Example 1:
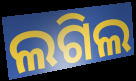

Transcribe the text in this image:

ଲଗିଲ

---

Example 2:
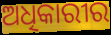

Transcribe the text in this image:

ଅଧିକାରୀର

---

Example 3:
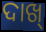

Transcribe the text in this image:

ଦାଖ୍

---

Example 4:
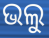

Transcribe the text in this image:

ଭଲୁ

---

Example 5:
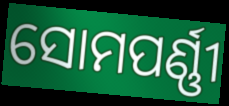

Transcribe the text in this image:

ସୋମପର୍ଣ୍ଣୀ